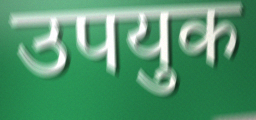
उपयुक